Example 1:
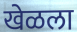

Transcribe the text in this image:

खेळला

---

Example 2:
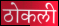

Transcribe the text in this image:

ठोकली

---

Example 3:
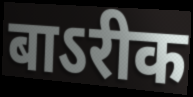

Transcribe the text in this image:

बाऽरीक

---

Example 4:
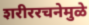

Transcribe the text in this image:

शरीररचनेमुळे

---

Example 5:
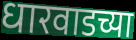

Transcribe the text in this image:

धारवाडच्या